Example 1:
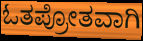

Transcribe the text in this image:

ಓತಪ್ರೋತವಾಗಿ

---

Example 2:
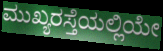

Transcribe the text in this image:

ಮುಖ್ಯರಸ್ತೆಯಲ್ಲಿಯೇ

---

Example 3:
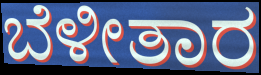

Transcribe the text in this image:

ಬೆಳೀತಾರ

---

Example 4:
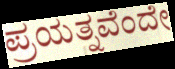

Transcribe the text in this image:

ಪ್ರಯತ್ನವೆಂದೇ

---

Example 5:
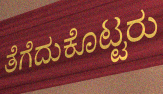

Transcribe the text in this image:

ತೆಗೆದುಕೊಟ್ಟರು